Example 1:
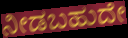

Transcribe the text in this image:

ನೀಡಬಹುದೇ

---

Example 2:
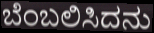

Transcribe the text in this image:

ಬೆಂಬಲಿಸಿದನು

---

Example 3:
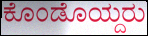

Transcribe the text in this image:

ಕೊಂಡೊಯ್ದರು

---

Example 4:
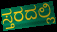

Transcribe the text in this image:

ಸ್ತರದಲ್ಲಿ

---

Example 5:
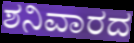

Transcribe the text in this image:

ಶನಿವಾರದ